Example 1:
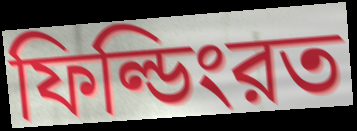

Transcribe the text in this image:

ফিল্ডিংরত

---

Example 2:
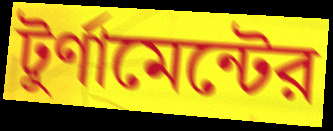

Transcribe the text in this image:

টুর্ণামেন্টের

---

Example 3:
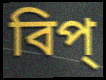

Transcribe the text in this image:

বিপ্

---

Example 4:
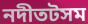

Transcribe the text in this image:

নদীতটসম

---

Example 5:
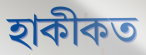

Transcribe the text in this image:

হাকীকত